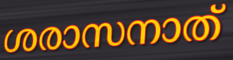
ശരാസനാത്